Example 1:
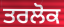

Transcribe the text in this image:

ਤਰਲੋਕ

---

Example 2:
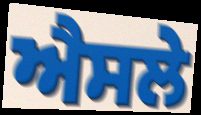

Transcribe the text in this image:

ਐਸਲੇ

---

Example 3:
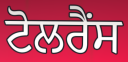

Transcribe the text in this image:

ਟੋਲਰੈਂਸ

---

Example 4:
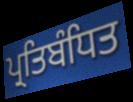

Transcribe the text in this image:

ਪ੍ਰਤਿਬੰਧਿਤ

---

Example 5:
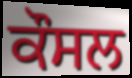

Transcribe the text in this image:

ਕੌਸਲ